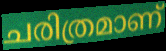
ചരിത്രമാണ്